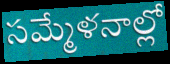
సమ్మేళనాల్లో